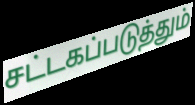
சட்டகப்படுத்தும்